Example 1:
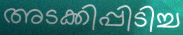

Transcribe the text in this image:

അടക്കിപ്പിടിച്ച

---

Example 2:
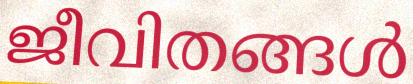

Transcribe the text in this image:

ജീവിതങ്ങൾ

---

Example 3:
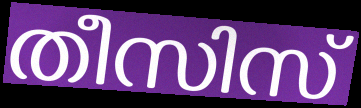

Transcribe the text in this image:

തീസിസ്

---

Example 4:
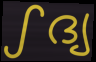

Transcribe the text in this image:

ഽദ്യ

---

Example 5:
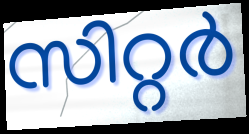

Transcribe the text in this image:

സിറ്റർ